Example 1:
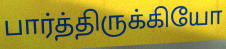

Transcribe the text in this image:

பார்த்திருக்கியோ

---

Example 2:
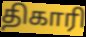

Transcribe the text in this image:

திகாரி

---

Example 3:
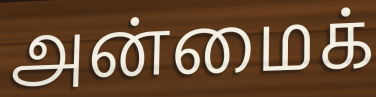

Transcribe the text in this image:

அன்மைக்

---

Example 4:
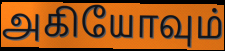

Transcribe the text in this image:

அகியோவும்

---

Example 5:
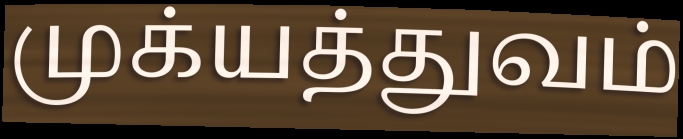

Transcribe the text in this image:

முக்யத்துவம்